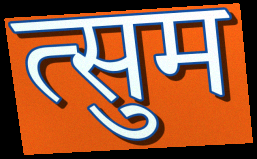
त्सुम